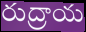
రుద్రాయ